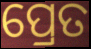
ପ୍ରେତ